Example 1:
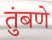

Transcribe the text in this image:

तुंबणे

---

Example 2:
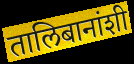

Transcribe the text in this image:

तालिबानांशी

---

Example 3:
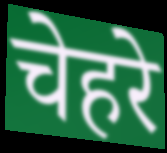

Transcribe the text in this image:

चेहरे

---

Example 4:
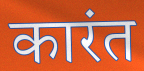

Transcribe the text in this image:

कारंत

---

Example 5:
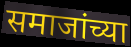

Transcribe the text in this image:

समाजांच्या